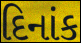
દિનાંક